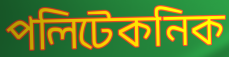
পলিটেকনিক